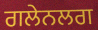
ਗਲੇਨਲਗ